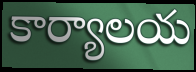
కార్యాలయ